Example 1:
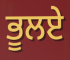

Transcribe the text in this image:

ਭੂਲਏ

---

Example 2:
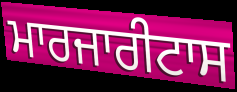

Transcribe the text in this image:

ਮਾਰਜਾਰੀਟਾਸ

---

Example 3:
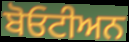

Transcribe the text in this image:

ਬੋਓਟੀਅਨ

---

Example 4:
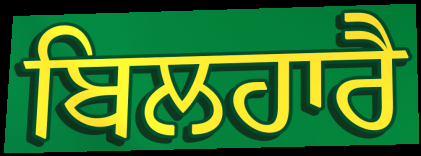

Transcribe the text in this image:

ਬਿਲਹਾਰੈ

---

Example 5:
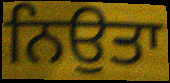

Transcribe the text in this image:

ਨਿਉਤਾ